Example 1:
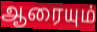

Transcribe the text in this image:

ஆரையும்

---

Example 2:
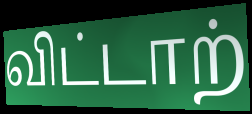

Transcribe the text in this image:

விட்டாற்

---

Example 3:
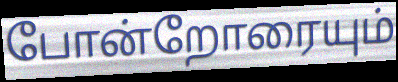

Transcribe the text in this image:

போன்றோரையும்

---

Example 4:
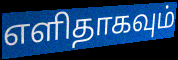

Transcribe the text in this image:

எளிதாகவும்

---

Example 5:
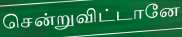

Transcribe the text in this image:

சென்றுவிட்டானே